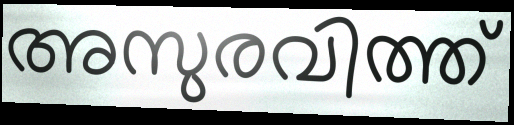
അസുരവിത്ത്